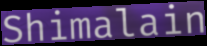
Shimalain